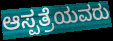
ಆಸ್ಪತ್ರೆಯವರು